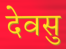
देवसु